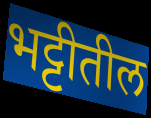
भट्टीतील